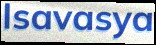
Isavasya